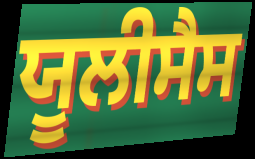
ਯੂਲੀਸੈਸ